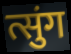
त्सुंग